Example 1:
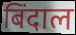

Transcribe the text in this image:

बिंदाल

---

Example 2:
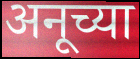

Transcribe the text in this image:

अनूच्या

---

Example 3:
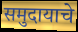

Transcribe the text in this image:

समुदायाचे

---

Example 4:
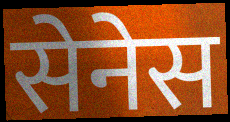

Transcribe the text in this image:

सेनेस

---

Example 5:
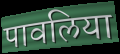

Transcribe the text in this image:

पावलिया